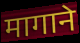
मागाने